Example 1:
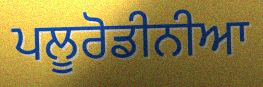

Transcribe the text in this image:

ਪਲੂਰੋਡੀਨੀਆ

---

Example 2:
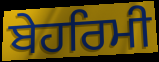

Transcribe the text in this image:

ਬੇਹਰਿਮੀ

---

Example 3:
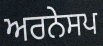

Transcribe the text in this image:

ਅਰਨੇਸਪ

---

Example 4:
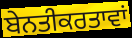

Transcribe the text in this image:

ਬੇਨਤੀਕਰਤਾਵਾਂ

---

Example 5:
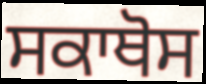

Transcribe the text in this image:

ਸਕਾਥੋਸ